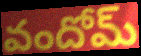
వందోమ్